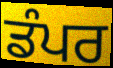
ਡੰਪਰ